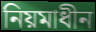
নিয়মাধীন